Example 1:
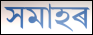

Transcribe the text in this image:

সমাহৰ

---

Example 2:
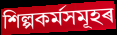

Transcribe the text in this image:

শিল্পকৰ্মসমূহৰ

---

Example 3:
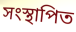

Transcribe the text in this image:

সংস্থাপিত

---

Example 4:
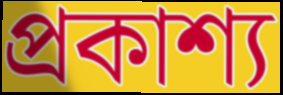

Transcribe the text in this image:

প্ৰকাশ্য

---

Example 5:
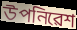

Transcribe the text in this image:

উপনিৱেশ